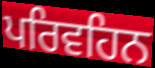
ਪਰਿਵਹਿਨ